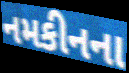
નમકીનના